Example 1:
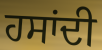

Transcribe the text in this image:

ਹਸਾਂਦੀ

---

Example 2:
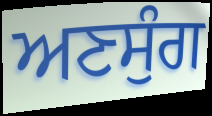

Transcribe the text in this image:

ਅਣਸੁੰਗ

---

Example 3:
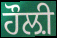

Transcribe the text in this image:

ਹੌਲ਼ੀ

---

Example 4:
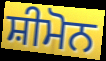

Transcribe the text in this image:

ਸ਼ੀਮੋਨ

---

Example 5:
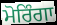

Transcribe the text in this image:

ਮੋਰਿੰਗਾ